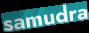
samudra